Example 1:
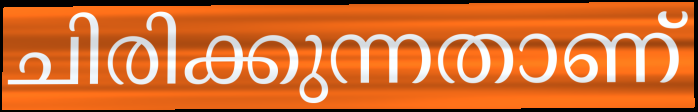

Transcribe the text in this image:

ചിരിക്കുന്നതാണ്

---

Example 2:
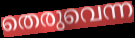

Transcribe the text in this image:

തെരുവെന്ന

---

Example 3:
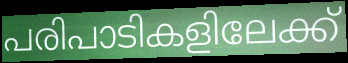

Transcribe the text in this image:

പരിപാടികളിലേക്ക്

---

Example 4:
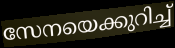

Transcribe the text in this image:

സേനയെക്കുറിച്ച്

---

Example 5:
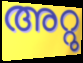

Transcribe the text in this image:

അറ്റു